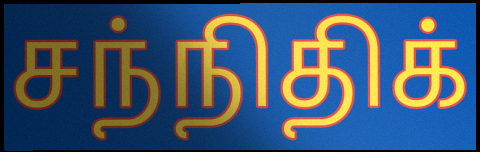
சந்நிதிக்